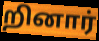
றினார்